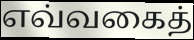
எவ்வகைத்